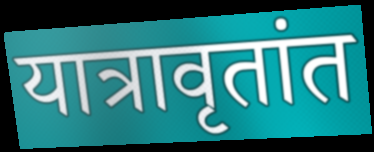
यात्रावृतांत